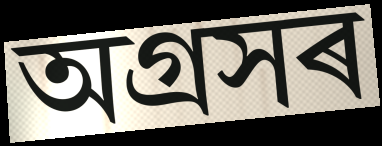
অগ্ৰসৰ